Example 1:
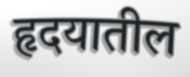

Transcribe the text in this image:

हृदयातील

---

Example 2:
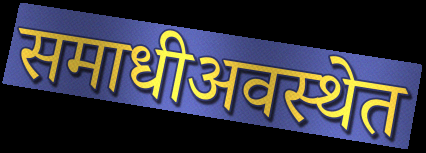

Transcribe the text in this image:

समाधीअवस्थेत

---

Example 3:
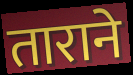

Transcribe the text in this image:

ताराने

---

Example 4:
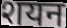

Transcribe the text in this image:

शयन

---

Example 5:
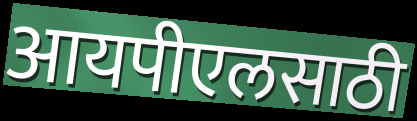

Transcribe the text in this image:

आयपीएलसाठी